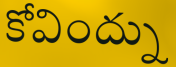
కోవింద్ను